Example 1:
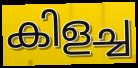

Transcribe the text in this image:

കിളച്ച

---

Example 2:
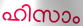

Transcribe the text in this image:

ഹിസാം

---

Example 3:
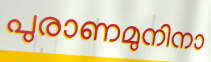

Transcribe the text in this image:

പുരാണമുനിനാ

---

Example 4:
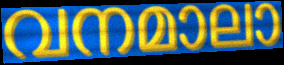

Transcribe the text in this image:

വനമാലാ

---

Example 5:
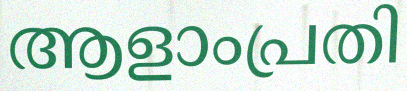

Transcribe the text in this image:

ആളാംപ്രതി